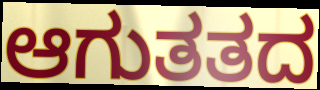
ಆಗುತತದ